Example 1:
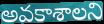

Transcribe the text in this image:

అవకాశాలని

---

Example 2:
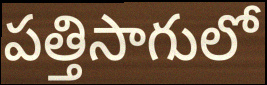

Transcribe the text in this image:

పత్తిసాగులో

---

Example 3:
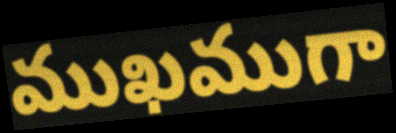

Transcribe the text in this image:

ముఖముగా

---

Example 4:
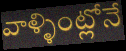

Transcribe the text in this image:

వాళ్ళింట్లోనే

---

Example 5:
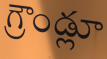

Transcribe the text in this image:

గ్రౌండ్లూ